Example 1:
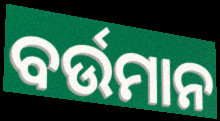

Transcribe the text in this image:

ବର୍ଉମାନ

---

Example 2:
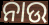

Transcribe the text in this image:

ନାଉ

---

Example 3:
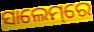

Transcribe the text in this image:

ସାଲେମ୍‌ରେ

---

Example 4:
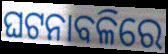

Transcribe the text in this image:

ଘଟନାବଳିରେ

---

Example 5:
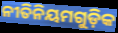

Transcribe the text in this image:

ନୀତିନିୟମଗୁଡ଼ିକ